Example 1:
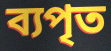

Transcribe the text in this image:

ব্যপৃত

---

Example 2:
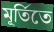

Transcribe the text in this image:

মূর্তিতে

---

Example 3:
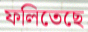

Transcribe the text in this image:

ফলিতেছে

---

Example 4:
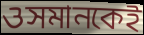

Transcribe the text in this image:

ওসমানকেই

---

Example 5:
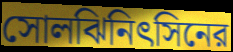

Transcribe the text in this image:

সোলঝিনিৎসিনের